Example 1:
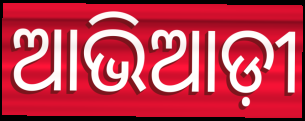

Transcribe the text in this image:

ଆଭିଆଡ଼ୀ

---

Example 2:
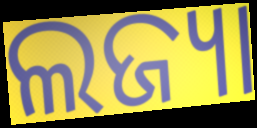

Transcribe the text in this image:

ଲଜ୍ୟା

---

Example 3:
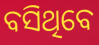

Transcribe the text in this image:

ବସିଥିବେ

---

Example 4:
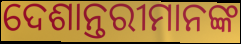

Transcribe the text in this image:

ଦେଶାନ୍ତରୀମାନଙ୍କ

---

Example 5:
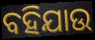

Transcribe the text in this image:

ବହିଯାଉ